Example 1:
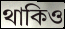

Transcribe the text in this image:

থাকিও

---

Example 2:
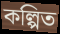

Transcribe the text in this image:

কল্পিত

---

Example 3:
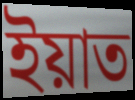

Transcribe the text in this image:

ইয়াত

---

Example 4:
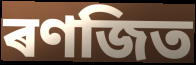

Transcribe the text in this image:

ৰণজিত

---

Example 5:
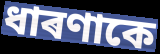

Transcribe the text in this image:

ধাৰণাকে